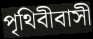
পৃথিবীবাসী